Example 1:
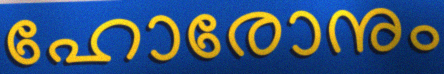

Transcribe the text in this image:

ഹോരോനും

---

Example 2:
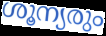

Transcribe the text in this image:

ശൂന്യരും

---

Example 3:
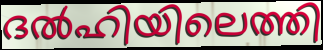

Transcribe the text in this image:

ദൽഹിയിലെത്തി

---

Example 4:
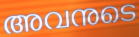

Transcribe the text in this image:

അവനുടെ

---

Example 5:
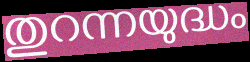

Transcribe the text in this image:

തുറന്നയുദ്ധം